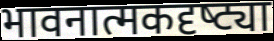
भावनात्मकदृष्ट्या